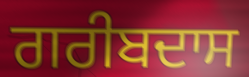
ਗਰੀਬਦਾਸ